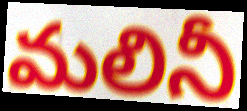
మలినీ